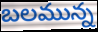
బలమున్న